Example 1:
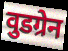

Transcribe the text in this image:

वुडग्रेन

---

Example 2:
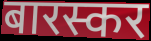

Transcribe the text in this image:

बारस्कर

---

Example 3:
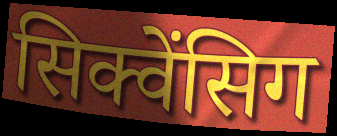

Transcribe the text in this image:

सिक्वेंसिग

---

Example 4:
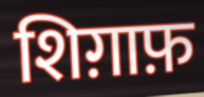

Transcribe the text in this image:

शिग़ाफ़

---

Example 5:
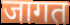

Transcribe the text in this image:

जागत